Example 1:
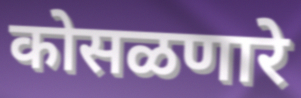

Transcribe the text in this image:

कोसळणारे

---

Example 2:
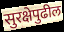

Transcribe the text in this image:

सुरक्षेपुढील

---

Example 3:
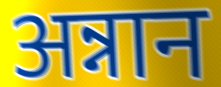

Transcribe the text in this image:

अन्नान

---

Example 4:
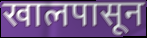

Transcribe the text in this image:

खालपासून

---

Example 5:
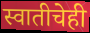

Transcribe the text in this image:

स्वातीचेही